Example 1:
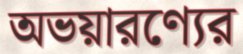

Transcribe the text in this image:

অভয়ারণ্যের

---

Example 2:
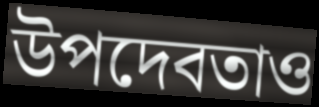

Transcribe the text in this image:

উপদেবতাও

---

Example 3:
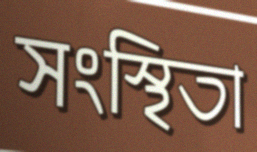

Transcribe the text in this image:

সংস্থিতা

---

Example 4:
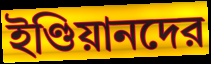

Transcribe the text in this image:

ইণ্ডিয়ানদের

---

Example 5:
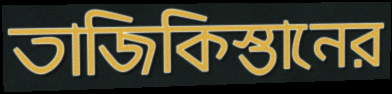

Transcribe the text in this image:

তাজিকিস্তানের